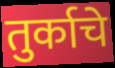
तुर्काचे